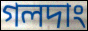
গলদাং